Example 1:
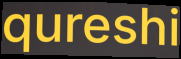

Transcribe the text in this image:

qureshi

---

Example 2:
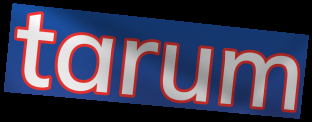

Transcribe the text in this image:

tarum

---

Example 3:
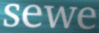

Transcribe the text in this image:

sewe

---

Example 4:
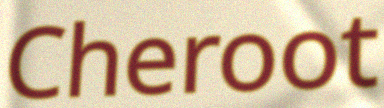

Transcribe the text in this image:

Cheroot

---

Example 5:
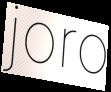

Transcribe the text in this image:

joro